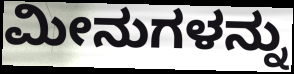
ಮೀನುಗಳನ್ನು